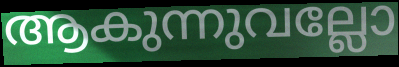
ആകുന്നുവല്ലോ